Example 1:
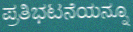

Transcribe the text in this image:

ಪ್ರತಿಭಟನೆಯನ್ನೂ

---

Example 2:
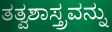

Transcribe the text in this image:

ತತ್ವಶಾಸ್ತ್ರವನ್ನು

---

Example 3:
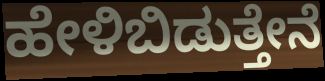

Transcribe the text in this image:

ಹೇಳಿಬಿಡುತ್ತೇನೆ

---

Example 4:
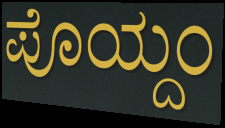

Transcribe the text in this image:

ಪೊಯ್ದಂ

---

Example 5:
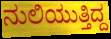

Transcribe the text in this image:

ನುಲಿಯುತ್ತಿದ್ದ